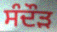
ਸੰਦੌੜ